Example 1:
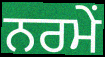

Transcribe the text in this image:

ਨਰਮੇਂ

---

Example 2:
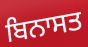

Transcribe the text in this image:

ਬਿਨਾਸਤ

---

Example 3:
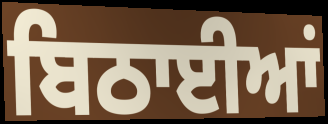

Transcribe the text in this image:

ਬਿਠਾਈਆਂ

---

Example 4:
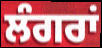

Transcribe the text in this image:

ਲੰਗਰਾਂ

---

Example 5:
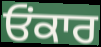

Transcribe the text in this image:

ਓਂਕਾਰ